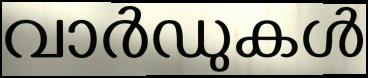
വാർഡുകൾ